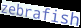
zebrafish